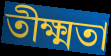
তীক্ষ্মতা